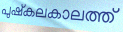
പുഷ്കലകാലത്ത്